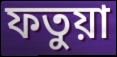
ফতুয়া